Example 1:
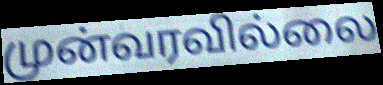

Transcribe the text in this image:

முன்வரவில்லை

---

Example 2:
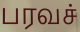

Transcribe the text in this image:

பரவச்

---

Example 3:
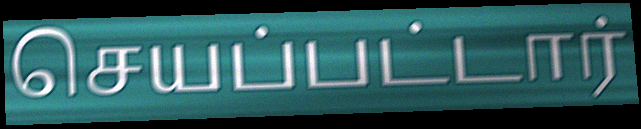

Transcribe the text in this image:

செயப்பட்டார்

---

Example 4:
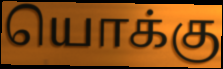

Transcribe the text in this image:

யொக்கு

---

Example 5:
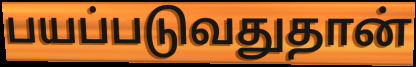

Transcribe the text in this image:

பயப்படுவதுதான்